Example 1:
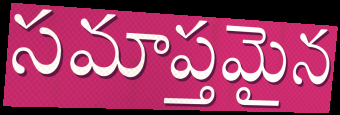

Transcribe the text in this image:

సమాప్తమైన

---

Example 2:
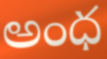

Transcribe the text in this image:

అంధ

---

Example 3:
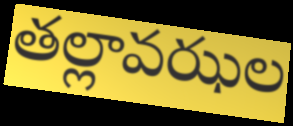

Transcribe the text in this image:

తల్లావఝల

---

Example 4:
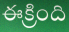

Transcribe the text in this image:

ఈక్రింది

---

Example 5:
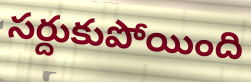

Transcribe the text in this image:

సర్దుకుపోయింది